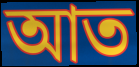
আত